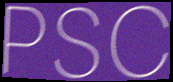
PSC